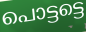
പൊട്ടട്ടെ